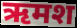
ऋमश